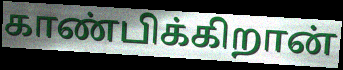
காண்பிக்கிறான்